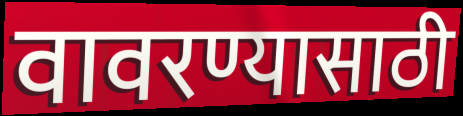
वावरण्यासाठी